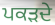
ਪਕੜਦੇ